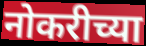
नोकरीच्या